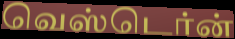
வெஸ்டெர்ன்